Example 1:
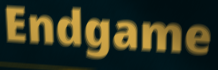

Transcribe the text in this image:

Endgame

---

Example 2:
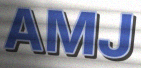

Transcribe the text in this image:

AMJ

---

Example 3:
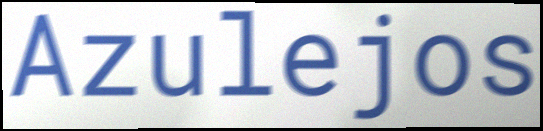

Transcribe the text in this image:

Azulejos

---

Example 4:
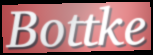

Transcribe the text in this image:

Bottke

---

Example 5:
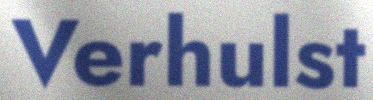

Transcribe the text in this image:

Verhulst